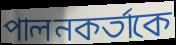
পালনকর্তাকে